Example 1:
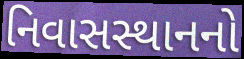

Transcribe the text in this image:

નિવાસસ્થાનનો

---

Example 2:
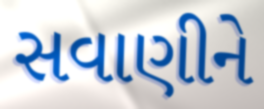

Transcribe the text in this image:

સવાણીને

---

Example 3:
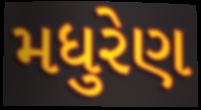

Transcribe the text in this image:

મધુરેણ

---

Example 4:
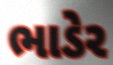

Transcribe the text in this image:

ભાડેર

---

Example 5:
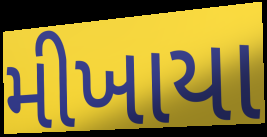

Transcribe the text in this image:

મીખાયા